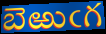
బెఱుఁగ